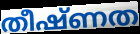
തീഷ്ണത